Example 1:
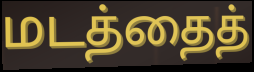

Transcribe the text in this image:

மடத்தைத்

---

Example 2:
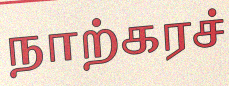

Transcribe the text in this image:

நாற்கரச்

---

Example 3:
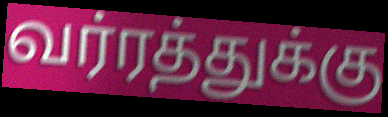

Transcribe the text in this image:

வர்ரத்துக்கு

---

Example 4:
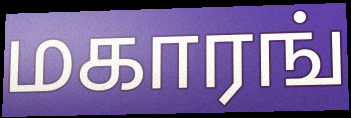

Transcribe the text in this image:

மகாரங்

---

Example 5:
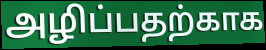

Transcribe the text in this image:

அழிப்பதற்காக